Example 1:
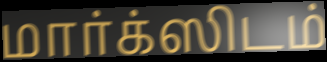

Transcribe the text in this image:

மார்க்ஸிடம்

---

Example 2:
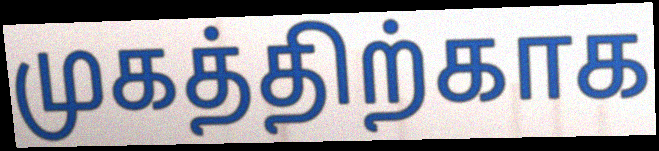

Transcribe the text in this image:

முகத்திற்காக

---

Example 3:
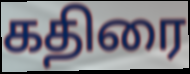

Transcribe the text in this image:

கதிரை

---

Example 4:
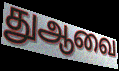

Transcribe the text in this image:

துஆவை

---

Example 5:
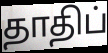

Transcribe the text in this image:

தாதிப்